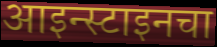
आइन्स्टाइनचा